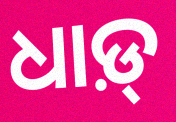
ଧାଡ଼୍